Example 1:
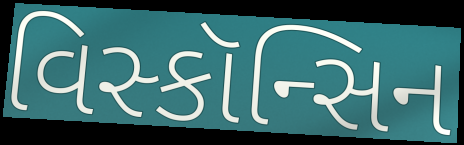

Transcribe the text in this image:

વિસ્કૉન્સિન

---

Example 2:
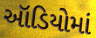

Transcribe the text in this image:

ઑડિયોમાં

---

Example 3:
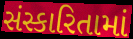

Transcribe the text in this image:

સંસ્કારિતામાં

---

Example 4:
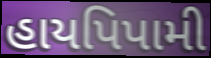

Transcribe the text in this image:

હાયપિપામી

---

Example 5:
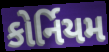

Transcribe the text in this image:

કોર્નિયમ